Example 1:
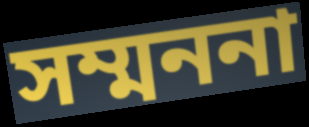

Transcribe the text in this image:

সম্মননা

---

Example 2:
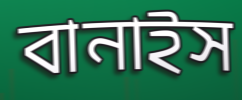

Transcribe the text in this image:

বানাইস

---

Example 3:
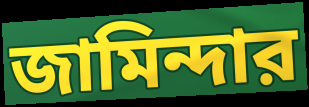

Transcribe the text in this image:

জামিন্দার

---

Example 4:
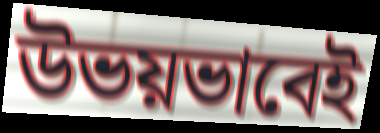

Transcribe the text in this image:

উভয়ভাবেই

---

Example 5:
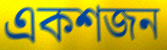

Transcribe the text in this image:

একশজন